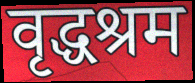
वृद्धश्रम